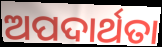
ଅପଦାର୍ଥତା